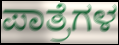
ಪಾತ್ರೆಗಳ